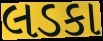
લડકા